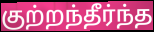
குற்றந்தீர்ந்த